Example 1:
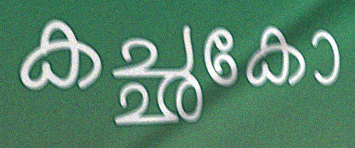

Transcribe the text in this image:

കച്ഛകോ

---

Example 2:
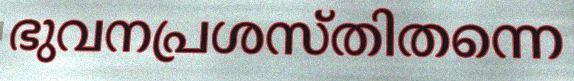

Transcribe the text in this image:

ഭുവനപ്രശസ്തിതന്നെ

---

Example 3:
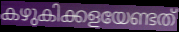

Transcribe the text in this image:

കഴുകിക്കളയേണ്ടത്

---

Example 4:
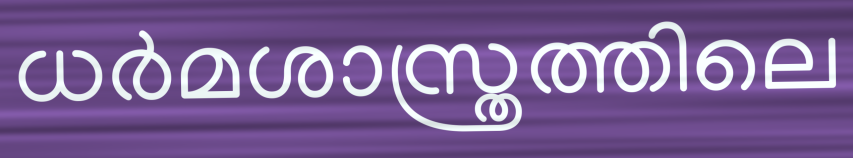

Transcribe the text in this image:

ധർമശാസ്ത്രത്തിലെ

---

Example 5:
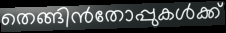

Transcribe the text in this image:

തെങ്ങിൻതോപ്പുകൾക്ക്